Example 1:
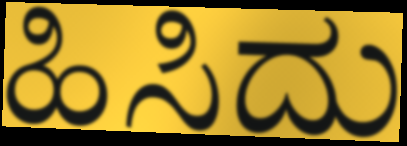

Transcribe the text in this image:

ಹಿಸಿದು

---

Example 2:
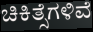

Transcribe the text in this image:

ಚಿಕಿತ್ಸೆಗಳಿವೆ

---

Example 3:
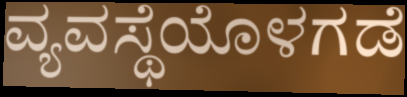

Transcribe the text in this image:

ವ್ಯವಸ್ಥೆಯೊಳಗಡೆ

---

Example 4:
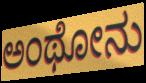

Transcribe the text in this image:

ಅಂಥೋನು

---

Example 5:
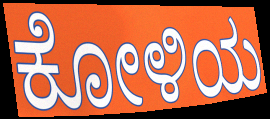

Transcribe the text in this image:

ಕೋಳಿಯ